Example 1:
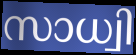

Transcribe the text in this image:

സാധ്വി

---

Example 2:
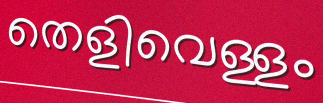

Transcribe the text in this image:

തെളിവെള്ളം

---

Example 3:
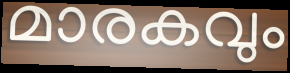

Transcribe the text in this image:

മാരകവും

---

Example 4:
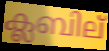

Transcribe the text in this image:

ക്ലബില്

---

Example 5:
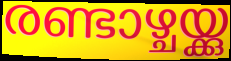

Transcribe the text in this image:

രണ്ടാഴ്ചയ്ക്കു